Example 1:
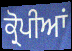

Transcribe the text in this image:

ਕ੍ਰੋਪੀਆਂ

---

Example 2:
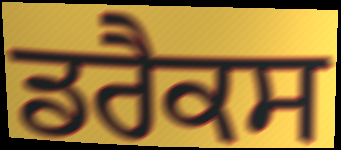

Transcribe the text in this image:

ਡਰੈਕਸ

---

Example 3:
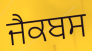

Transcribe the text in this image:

ਜੈਕਬਸ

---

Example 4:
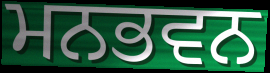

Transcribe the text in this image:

ਮਨਭਵਨ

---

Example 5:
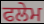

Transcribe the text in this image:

ਫਲੇਮ